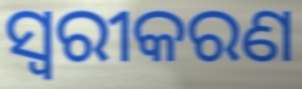
ସ୍ୱରୀକରଣ